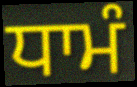
ਧਾਮੰ